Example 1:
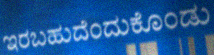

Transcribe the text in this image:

ಇರಬಹುದೆಂದುಕೊಂಡು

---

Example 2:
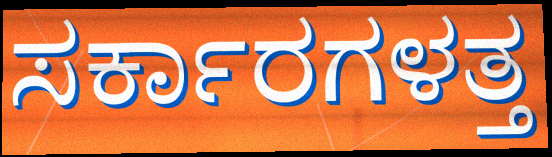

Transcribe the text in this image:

ಸರ್ಕಾರಗಳತ್ತ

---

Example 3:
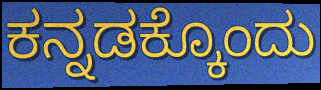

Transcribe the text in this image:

ಕನ್ನಡಕ್ಕೊಂದು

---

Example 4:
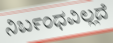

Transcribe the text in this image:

ನಿರ್ಬಂಧವಿಲ್ಲದೆ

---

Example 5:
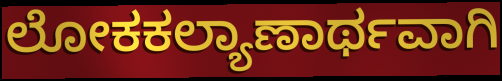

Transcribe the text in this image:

ಲೋಕಕಲ್ಯಾಣಾರ್ಥವಾಗಿ